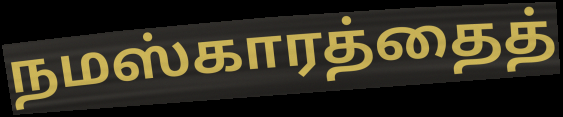
நமஸ்காரத்தைத்